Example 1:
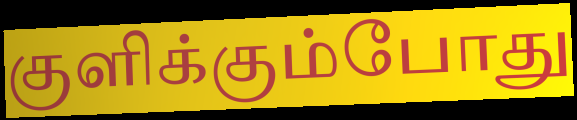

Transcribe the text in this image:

குளிக்கும்போது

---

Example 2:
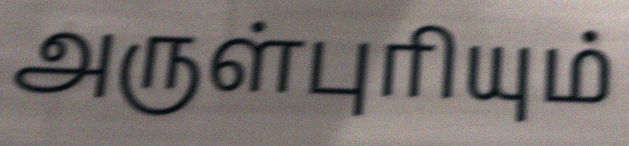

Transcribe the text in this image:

அருள்புரியும்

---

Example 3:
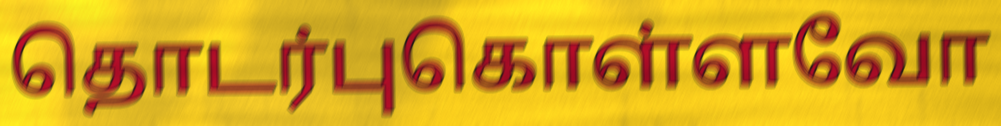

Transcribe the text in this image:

தொடர்புகொள்ளவோ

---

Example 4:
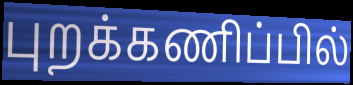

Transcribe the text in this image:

புறக்கணிப்பில்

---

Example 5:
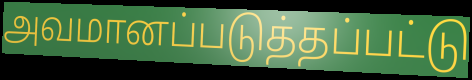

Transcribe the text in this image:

அவமானப்படுத்தப்பட்டு